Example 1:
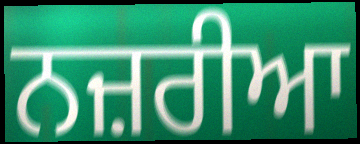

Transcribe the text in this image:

ਨਜ਼ਰੀਆ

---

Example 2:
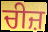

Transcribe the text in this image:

ਚੀਜ਼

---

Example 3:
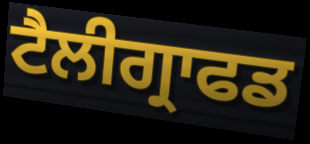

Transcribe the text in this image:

ਟੈਲੀਗ੍ਰਾਫਡ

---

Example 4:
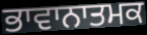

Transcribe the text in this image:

ਭਾਵਾਨਾਤਮਕ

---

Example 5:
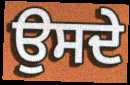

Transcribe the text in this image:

ਉਸਦੇ